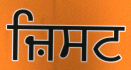
ਜ਼ਿਸਟ